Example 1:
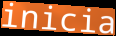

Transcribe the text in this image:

inicia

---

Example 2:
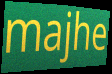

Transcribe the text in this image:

majhe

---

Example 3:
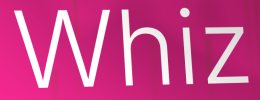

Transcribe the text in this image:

Whiz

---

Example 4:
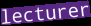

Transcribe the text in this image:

lecturer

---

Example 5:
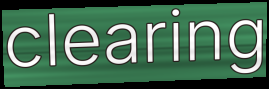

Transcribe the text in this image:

clearing